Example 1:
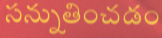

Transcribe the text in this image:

సన్నుతించడం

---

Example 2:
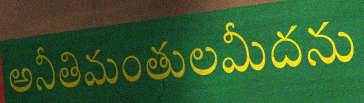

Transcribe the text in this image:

అనీతిమంతులమీదను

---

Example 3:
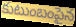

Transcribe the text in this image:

కుటుంబంపైన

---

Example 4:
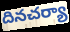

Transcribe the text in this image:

దినచర్యా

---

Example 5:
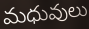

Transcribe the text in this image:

మధువులు